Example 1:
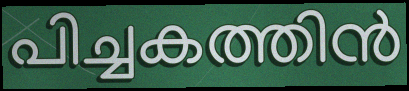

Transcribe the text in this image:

പിച്ചകത്തിൻ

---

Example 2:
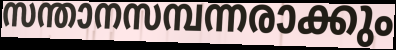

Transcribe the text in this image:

സന്താനസമ്പന്നരാക്കും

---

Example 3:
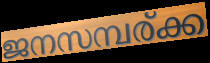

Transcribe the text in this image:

ജനസമ്പര്ക്ക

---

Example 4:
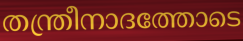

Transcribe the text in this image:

തന്ത്രീനാദത്തോടെ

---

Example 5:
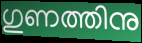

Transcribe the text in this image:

ഗുണത്തിനു